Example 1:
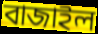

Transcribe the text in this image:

বাজাইল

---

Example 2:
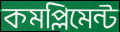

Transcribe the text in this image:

কমপ্লিমেন্ট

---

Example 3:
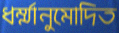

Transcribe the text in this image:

ধর্ম্মানুমোদিত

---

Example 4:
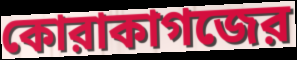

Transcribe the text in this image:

কোরাকাগজের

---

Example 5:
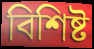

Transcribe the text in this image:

বিশিষ্ট